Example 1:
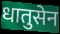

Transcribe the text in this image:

धातुसेन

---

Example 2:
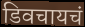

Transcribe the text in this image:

डिवचायचं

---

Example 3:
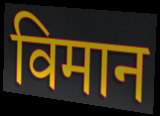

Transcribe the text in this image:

विमान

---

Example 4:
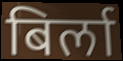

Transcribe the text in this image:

बिर्ला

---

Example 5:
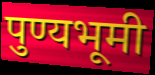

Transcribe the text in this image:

पुण्यभूमी